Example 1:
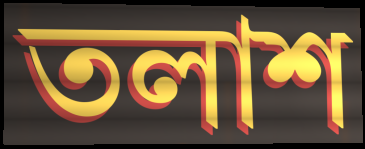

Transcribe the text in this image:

তলাশ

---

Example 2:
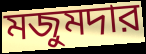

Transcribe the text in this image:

মজুমদার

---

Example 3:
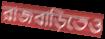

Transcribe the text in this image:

রাজবাড়িতেও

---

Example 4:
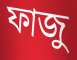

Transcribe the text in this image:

ফাজু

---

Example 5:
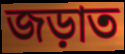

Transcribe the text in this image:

জড়াত